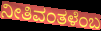
ನೀತಿವಂತಳೆಂಬ